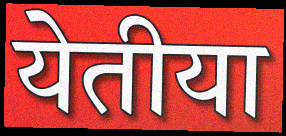
येतीया